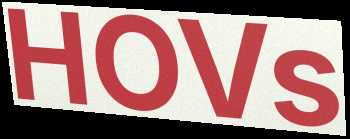
HOVs